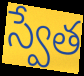
స్వేత